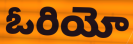
ఓరియో